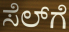
ಸೆಲ್‍ಗೆ